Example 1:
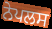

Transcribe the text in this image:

ਨੇਪਲਸ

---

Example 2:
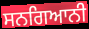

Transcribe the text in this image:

ਸਨਗਿਆਨੀ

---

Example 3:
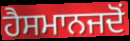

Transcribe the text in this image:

ਹੈਸਮਾਨਜਦੋਂ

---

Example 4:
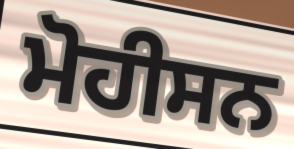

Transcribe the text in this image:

ਮੋਹੀਸਨ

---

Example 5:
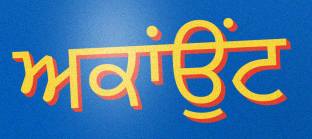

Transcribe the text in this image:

ਅਕਾਂਉਂਟ